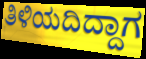
ತಿಳಿಯದಿದ್ದಾಗ